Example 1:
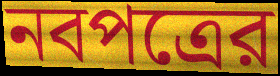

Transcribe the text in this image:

নবপত্রের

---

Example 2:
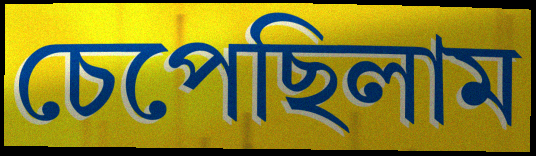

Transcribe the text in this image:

চেপেছিলাম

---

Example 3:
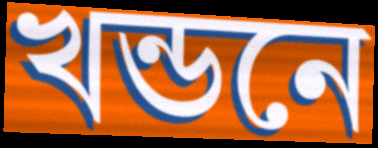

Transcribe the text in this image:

খন্ডনে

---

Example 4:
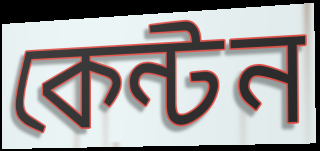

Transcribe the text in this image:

কেন্টন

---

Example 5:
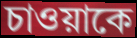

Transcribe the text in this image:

চাওয়াকে